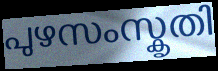
പുഴസംസ്കൃതി